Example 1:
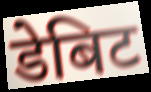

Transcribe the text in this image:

डेबिट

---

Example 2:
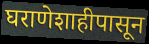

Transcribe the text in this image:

घराणेशाहीपासून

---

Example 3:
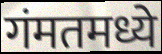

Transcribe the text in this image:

गंमतमध्ये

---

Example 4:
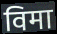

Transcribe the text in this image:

विमा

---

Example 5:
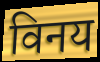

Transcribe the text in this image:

विनय